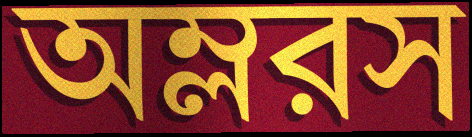
অম্লরস